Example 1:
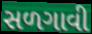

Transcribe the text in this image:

સળગાવી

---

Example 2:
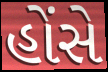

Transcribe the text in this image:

હોંસે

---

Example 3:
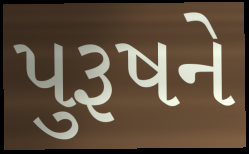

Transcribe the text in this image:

પુરૂષને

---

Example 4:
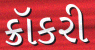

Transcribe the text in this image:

ક્રૉકરી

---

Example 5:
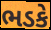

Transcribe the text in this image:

ભડકે